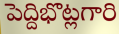
పెద్దిభొట్లగారి